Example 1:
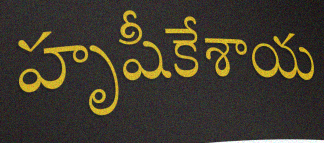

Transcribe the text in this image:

హృషీకేశాయ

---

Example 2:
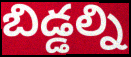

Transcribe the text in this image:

బిడ్డల్ని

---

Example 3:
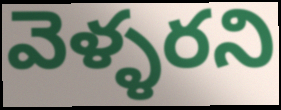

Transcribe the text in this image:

వెళ్ళరని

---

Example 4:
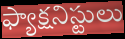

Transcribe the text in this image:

ఫ్యాక్షనిస్టులు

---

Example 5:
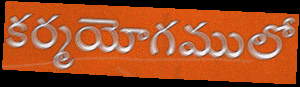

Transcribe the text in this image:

కర్మయోగములో